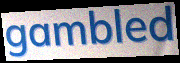
gambled